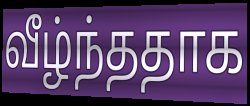
வீழ்ந்ததாக